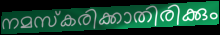
നമസ്കരിക്കാതിരിക്കും